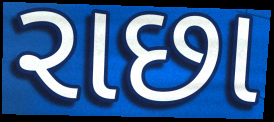
રાછા